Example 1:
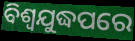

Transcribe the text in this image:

ବିଶ୍ୱଯୁଦ୍ଧପରେ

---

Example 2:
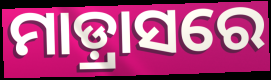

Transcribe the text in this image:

ମାଡ଼୍ରାସରେ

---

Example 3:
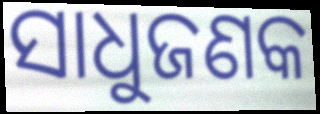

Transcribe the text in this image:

ସାଧୁଜଣକ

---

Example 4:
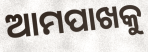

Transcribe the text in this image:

ଆମପାଖକୁ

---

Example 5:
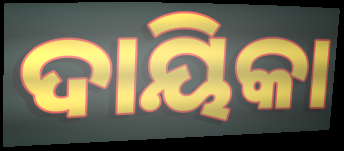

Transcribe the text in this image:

ଦାୟିକା